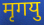
मृगयु